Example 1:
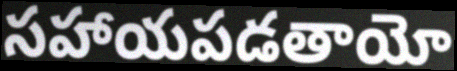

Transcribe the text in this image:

సహాయపడతాయో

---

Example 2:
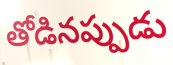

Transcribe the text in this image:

తోడినప్పుడు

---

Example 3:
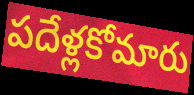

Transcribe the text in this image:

పదేళ్లకోమారు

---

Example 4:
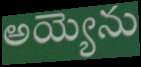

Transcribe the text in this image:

అయ్యెను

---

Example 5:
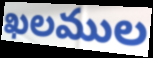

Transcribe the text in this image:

ఖలముల